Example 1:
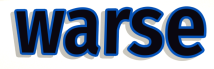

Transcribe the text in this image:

warse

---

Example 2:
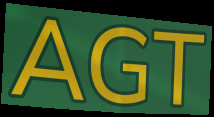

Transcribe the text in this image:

AGT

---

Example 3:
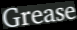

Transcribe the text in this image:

Grease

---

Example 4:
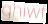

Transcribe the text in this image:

ghiwf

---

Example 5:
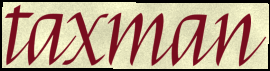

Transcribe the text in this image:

taxman